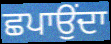
ਛਪਾਉਂਦਾ